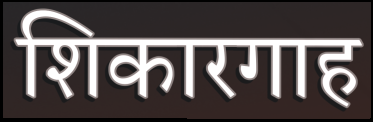
शिकारगाह